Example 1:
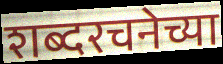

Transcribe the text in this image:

शब्दरचनेच्या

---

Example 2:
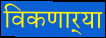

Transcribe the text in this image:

विकणार्या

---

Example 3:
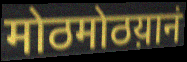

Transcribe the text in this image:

मोठमोठय़ानं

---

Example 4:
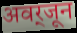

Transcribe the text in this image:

अवर्जून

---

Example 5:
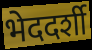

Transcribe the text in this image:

भेददर्शी